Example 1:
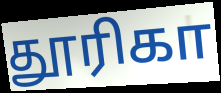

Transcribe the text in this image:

தூரிகா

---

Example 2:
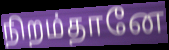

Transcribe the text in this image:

நிறம்தானே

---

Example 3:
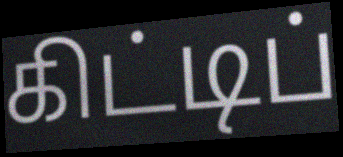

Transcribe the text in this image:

கிட்டிப்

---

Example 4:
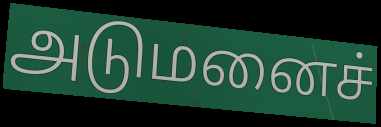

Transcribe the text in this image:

அடுமனைச்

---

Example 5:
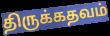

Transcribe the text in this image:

திருக்கதவம்